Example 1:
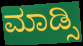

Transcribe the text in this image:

ಮಾಡ್ಸಿ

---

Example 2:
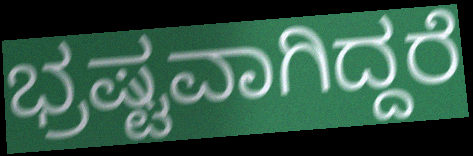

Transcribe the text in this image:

ಭ್ರಷ್ಟವಾಗಿದ್ದರೆ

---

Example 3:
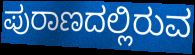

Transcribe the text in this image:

ಪುರಾಣದಲ್ಲಿರುವ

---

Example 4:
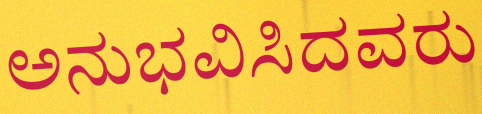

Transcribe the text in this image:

ಅನುಭವಿಸಿದವರು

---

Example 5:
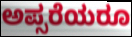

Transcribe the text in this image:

ಅಪ್ಸರೆಯರೂ